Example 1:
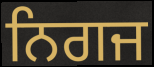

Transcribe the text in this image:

ਨਿਗਜ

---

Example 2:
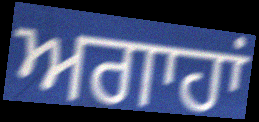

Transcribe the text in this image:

ਅਗਾਹਾਂ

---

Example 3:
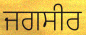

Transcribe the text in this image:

ਜਗਸੀਰ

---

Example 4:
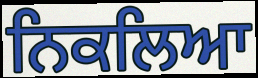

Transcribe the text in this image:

ਨਿਕਲਿਆ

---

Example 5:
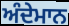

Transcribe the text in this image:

ਅੰਦੇਮਾਨ